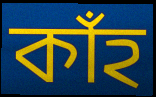
কাঁহ